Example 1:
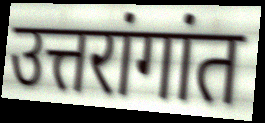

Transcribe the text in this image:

उत्तरांगांत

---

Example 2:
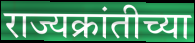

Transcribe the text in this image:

राज्यक्रांतीच्या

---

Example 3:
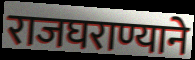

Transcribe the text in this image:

राजघराण्याने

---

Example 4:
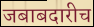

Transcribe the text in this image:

जबाबदारीच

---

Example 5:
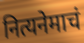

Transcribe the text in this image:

नित्यनेमाचं